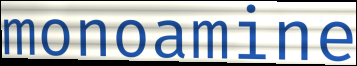
monoamine